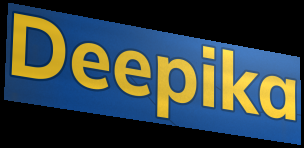
Deepika